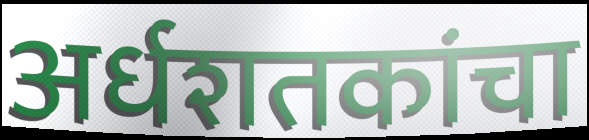
अर्धशतकांचा